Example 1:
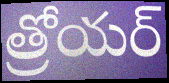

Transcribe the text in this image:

త్రోయర్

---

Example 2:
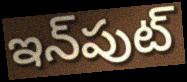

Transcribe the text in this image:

ఇన్‌పుట్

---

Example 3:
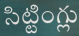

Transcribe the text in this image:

సిట్టింగ్లు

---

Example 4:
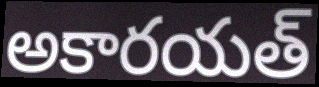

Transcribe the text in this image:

అకారయత్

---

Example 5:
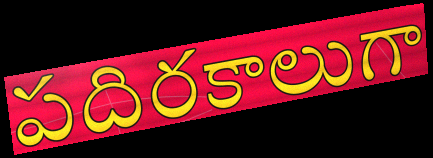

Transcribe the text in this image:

పదిరకాలుగా